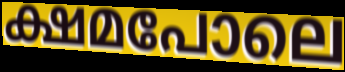
ക്ഷമപോലെ